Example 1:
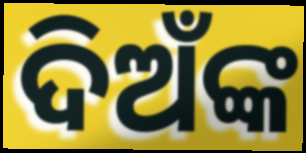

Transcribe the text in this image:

ଦିଅଁଙ୍କ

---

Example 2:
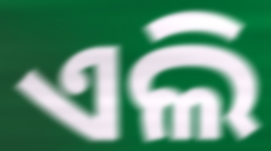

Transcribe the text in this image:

ଏଲି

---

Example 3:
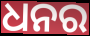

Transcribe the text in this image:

ଧନର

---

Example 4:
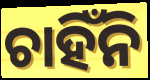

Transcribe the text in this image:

ଚାହିଁନି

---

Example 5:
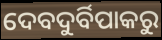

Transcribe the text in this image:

ଦେବଦୁର୍ବିପାକରୁ